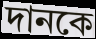
দানকে